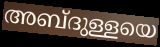
അബ്ദുള്ളയെ